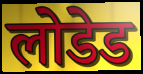
लोडेड